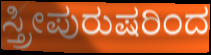
ಸ್ತ್ರೀಪುರುಷರಿಂದ